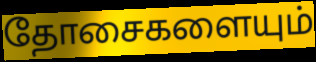
தோசைகளையும்